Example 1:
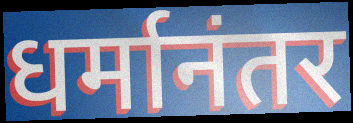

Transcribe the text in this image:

धर्मानंतर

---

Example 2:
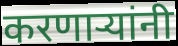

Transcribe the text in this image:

करणार्‍यांनी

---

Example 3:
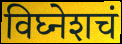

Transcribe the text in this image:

विघ्नेशचं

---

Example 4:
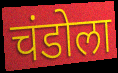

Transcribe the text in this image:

चंडोला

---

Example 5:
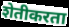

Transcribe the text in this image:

शेतीकरता